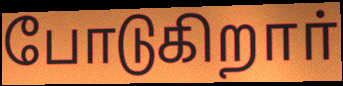
போடுகிறார்